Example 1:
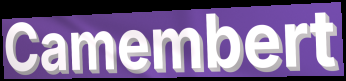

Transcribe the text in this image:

Camembert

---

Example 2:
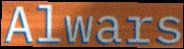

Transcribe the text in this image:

Alwars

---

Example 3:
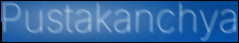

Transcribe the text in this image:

Pustakanchya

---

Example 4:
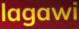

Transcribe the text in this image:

lagawi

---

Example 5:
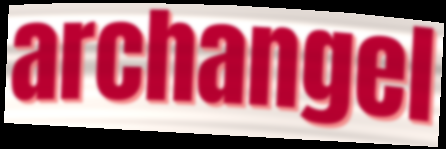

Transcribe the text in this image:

archangel